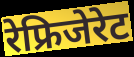
रेफ्रिजेरेट